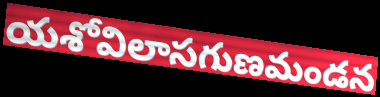
యశోవిలాసగుణమండన